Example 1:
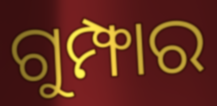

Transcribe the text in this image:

ଗୁମ୍ଫାର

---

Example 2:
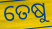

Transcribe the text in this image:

ତେଷୁ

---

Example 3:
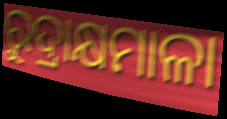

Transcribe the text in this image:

ରୁଦ୍ରାକ୍ଷମାଳା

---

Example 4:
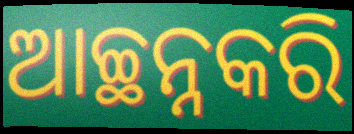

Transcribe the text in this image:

ଆଚ୍ଛନ୍ନକରି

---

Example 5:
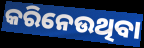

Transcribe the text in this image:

କରିନେଉଥିବା